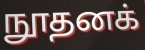
நூதனக்